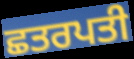
ਛਤਰਪਤੀ